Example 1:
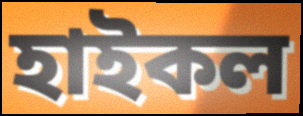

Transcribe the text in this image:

হাইকল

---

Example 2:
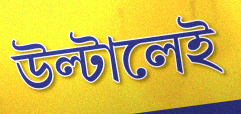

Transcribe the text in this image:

উল্টালেই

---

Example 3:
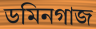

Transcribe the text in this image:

ডমিনগাজ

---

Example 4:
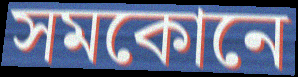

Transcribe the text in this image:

সমকোনে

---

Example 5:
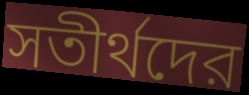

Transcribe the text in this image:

সতীর্থদের